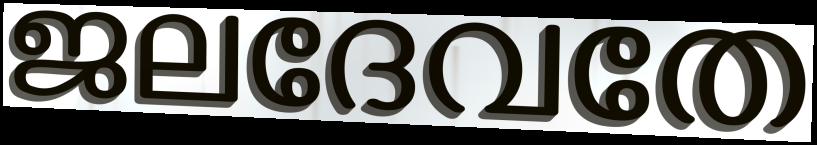
ജലദേവതേ